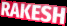
RAKESH